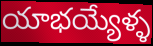
యాభయ్యేళ్ళ